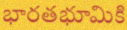
భారతభూమికి